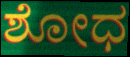
ಶೋಧ